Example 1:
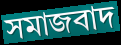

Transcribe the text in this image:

সমাজবাদ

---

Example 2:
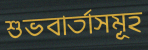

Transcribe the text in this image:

শুভবাৰ্তাসমূহ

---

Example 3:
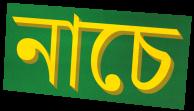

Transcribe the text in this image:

নাচে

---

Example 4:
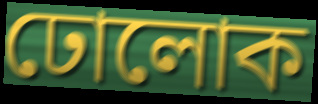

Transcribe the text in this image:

ঢোলোক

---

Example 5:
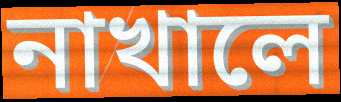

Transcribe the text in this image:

নাখালে